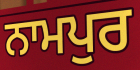
ਨਾਮਪੁਰ